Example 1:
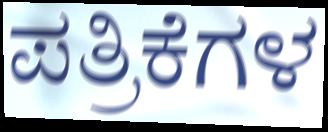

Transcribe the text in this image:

ಪತ್ರಿಕೆಗಳ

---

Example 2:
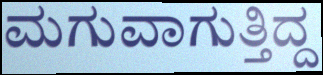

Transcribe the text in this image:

ಮಗುವಾಗುತ್ತಿದ್ದ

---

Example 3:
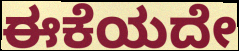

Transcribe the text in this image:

ಈಕೆಯದೇ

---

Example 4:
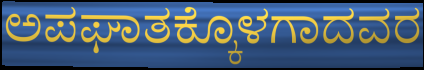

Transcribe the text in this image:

ಅಪಘಾತಕ್ಕೊಳಗಾದವರ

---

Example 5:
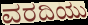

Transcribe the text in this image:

ವರದಿಯು